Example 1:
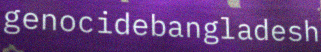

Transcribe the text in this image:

genocidebangladesh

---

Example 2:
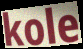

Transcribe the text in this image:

kole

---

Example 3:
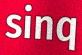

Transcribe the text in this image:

sinq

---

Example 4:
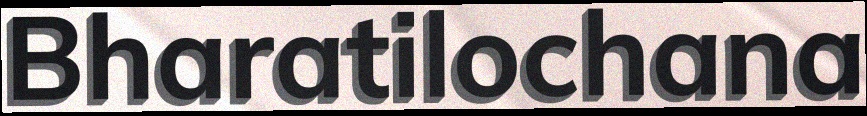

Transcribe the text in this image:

Bharatilochana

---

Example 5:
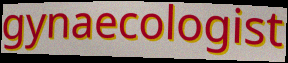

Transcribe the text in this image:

gynaecologist